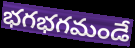
భగభగమండే